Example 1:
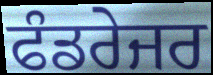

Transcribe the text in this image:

ਫੰਡਰੇਜਰ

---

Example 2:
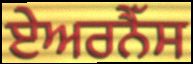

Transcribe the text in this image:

ਏਅਰਨੈੱਸ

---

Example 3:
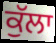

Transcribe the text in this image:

ਕੁੱਲਾ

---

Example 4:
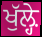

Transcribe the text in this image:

ਖੁੱਲ਼੍ਹੇ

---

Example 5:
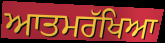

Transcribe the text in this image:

ਆਤਮਰੱਖਿਆ